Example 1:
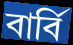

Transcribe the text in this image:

বার্বি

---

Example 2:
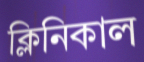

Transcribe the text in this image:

ক্লিনিকাল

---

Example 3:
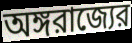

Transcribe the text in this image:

অঙ্গরাজ্যের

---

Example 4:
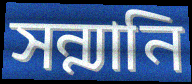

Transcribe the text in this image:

সন্মানি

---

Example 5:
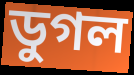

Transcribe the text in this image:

ডুগল